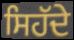
ਸਿਹੱਦੇ